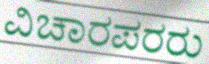
ವಿಚಾರಪರರು